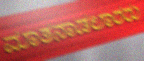
ಮಾತನಾಡಲಾರರು